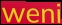
weni